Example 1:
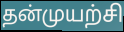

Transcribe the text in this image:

தன்முயற்சி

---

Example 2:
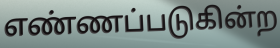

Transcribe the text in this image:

எண்ணப்படுகின்ற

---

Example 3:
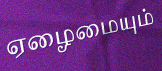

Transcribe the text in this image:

ஏழைமையும்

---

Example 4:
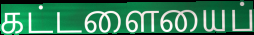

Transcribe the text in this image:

கட்டளையைப்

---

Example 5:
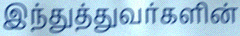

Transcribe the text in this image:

இந்துத்துவர்களின்